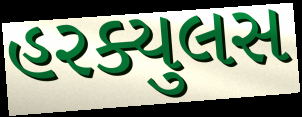
હરક્યુલસ